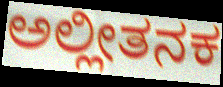
ಅಲ್ಲೀತನಕ